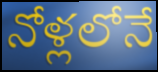
నోళ్లలోనే